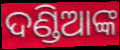
ଦଣ୍ଡିଆଙ୍କ